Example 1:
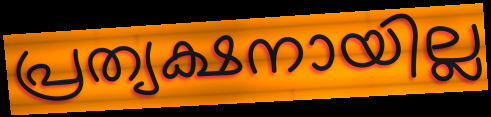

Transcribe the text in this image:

പ്രത്യക്ഷനായില്ല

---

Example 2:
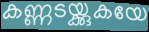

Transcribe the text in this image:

കണ്ണടയ്ക്കുകയേ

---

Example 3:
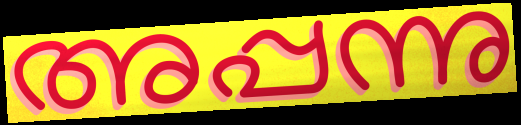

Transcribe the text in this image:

അപ്പന്നു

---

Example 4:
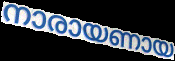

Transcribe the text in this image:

നാരായണായ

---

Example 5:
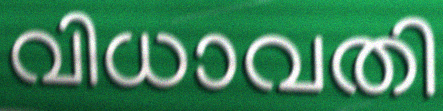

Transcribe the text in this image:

വിധാവതി